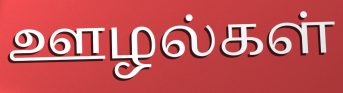
ஊழல்கள்